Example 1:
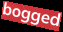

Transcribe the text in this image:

bogged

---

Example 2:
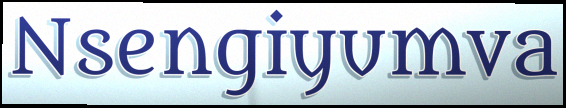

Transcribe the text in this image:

Nsengiyumva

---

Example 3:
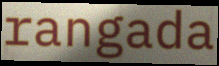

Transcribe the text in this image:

rangada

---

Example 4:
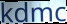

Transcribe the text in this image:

kdmc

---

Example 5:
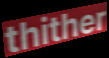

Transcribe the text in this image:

thither